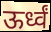
ऊर्ध्वं